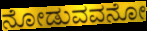
ನೋಡುವವನೋ